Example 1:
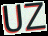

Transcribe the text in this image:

UZ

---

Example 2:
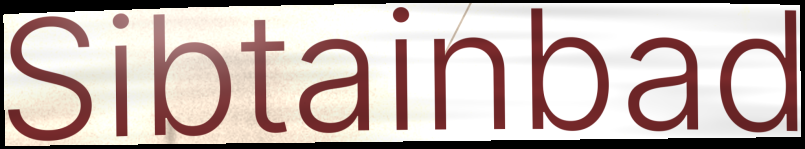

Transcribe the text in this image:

Sibtainbad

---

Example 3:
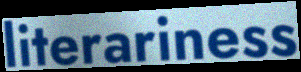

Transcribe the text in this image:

literariness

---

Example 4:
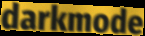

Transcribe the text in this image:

darkmode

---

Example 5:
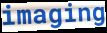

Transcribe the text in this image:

imaging